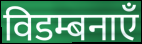
विडम्बनाएँ